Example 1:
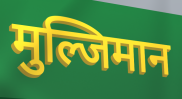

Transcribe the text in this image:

मुल्जिमान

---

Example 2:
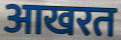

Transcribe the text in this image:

आखरत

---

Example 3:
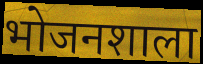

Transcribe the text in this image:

भोजनशाला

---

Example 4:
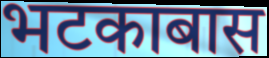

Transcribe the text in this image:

भटकाबास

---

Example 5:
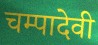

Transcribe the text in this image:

चम्पादेवी